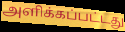
அளிக்கப்பட்டது